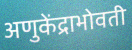
अणुकेंद्राभोवती